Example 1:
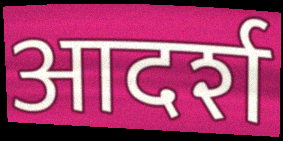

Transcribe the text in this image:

आदर्श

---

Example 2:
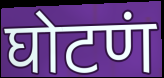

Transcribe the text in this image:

घोटणं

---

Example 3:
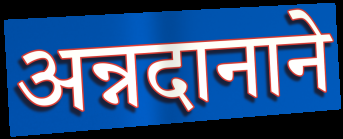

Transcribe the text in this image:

अन्नदानाने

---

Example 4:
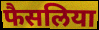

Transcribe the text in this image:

फैसलिया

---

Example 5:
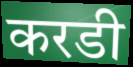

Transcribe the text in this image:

करडी